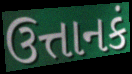
ઉત્તાનકં